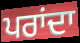
ਪਰਾਂਦਾ